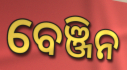
ବେଞ୍ଜିନ